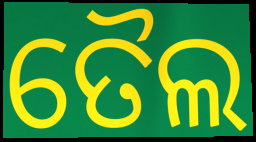
ତୈଲ